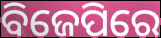
ବିଜେପିରେ